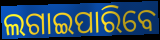
ଲଗାଇପାରିବେ